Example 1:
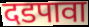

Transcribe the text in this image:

दडपावा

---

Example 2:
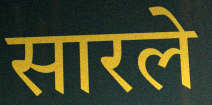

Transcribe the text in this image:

सारले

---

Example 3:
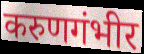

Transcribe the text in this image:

करुणगंभीर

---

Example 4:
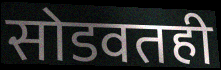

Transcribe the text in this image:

सोडवतही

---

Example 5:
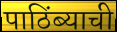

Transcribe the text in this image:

पाठिंब्याची